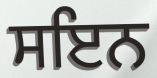
ਸਇਨ